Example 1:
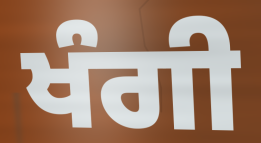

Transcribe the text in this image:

ਖੰਗੀ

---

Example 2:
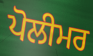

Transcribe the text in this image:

ਪੋਲੀਮਰ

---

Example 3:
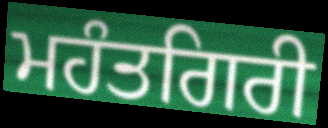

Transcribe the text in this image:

ਮਹੰਤਗਿਰੀ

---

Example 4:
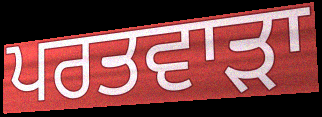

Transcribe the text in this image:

ਪਰਤਵਾੜਾ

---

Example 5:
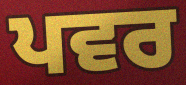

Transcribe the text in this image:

ਪਵਰ